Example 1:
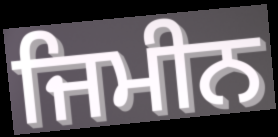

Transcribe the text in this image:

ਜਿਮੀਨ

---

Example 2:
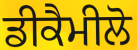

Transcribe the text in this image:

ਡੀਕੈਮੀਲੋ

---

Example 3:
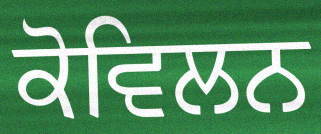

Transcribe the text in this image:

ਕੋਵਿਲਨ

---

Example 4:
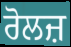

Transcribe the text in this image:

ਰੋਲਜ਼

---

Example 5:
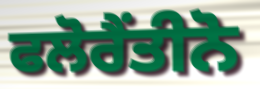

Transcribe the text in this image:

ਫਲੋਰੈਂਤੀਨੋ